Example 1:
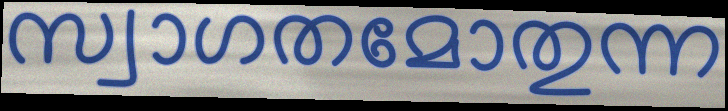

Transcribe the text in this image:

സ്വാഗതമോതുന്ന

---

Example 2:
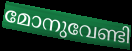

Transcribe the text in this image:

മോനുവേണ്ടി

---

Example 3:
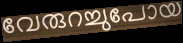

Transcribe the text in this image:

വേരുറച്ചുപോയ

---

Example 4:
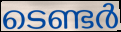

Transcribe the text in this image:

ടെണ്ടർ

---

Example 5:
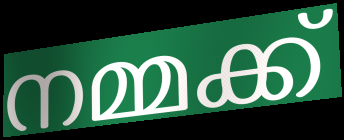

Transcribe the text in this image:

നമ്മക്ക്